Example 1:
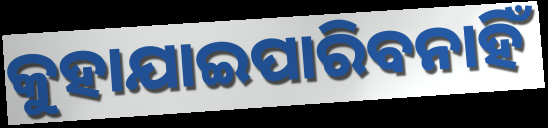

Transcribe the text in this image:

କୁହାଯାଇପାରିବନାହିଁ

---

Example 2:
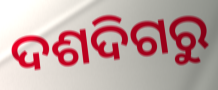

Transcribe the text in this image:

ଦଶଦିଗରୁ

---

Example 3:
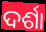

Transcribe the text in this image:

ଦର୍ଶା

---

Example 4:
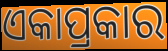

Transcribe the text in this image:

ଏକାପ୍ରକାର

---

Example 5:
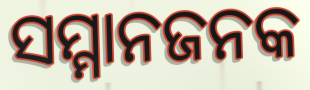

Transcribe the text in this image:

ସମ୍ମାନଜନକ